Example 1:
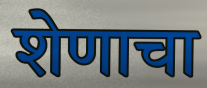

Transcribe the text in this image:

शेणाचा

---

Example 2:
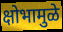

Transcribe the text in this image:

क्षोभामुळे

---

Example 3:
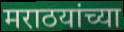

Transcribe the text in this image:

मराठयांच्या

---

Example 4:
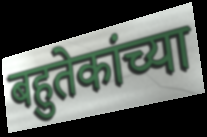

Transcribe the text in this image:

बहुतेकांच्या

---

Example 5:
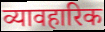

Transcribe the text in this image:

व्यावहारिक